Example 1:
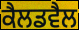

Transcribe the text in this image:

ਕੈਲਡਵੈਲ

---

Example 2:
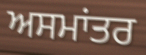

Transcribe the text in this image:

ਅਸਮਾਂਤਰ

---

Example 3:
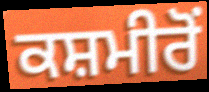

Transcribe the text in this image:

ਕਸ਼ਮੀਰੋਂ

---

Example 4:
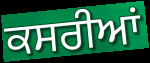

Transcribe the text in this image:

ਕਸਰੀਆਂ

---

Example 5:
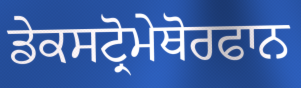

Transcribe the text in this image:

ਡੇਕਸਟ੍ਰੋਮੇਥੋਰਫਾਨ